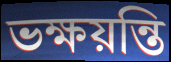
ভক্ষয়ন্তি